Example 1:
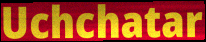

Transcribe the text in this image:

Uchchatar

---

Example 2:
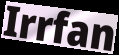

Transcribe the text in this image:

Irrfan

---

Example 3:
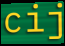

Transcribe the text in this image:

cij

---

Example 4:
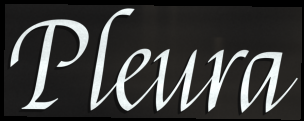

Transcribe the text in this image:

Pleura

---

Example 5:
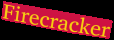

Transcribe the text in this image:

Firecracker